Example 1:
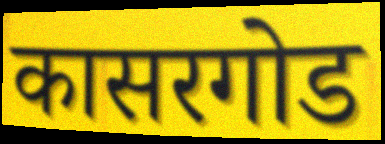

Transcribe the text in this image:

कासरगोड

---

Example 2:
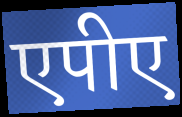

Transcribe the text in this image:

एपीए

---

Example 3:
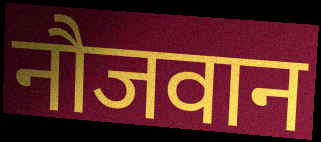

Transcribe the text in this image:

नौजवान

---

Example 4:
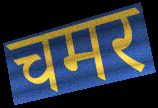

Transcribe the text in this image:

चमर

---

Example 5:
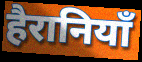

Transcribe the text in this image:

हैरानियाँ